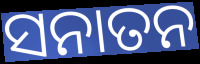
ସନାତନ